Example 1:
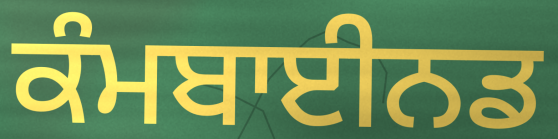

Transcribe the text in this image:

ਕੰਮਬਾਈਨਡ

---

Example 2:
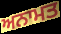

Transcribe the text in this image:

ਅਨਾਮਤ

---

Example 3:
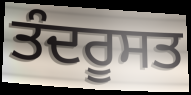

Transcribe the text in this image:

ਤੰਦਰੂਸਤ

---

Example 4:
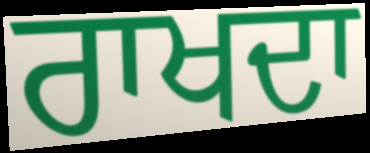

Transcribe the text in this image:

ਰਾਖਦਾ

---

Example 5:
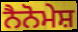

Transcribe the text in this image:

ਨੈਨੋਮੇਸ਼